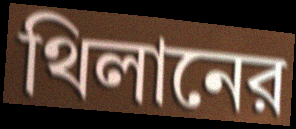
থিলানের